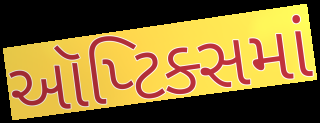
ઑપ્ટિક્સમાં